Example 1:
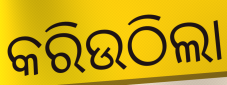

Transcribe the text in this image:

କରିଉଠିଲା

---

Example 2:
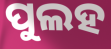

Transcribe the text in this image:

ପୁଲହ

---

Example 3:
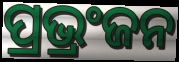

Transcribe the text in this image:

ପ୍ରଭ୍ରଂଜନ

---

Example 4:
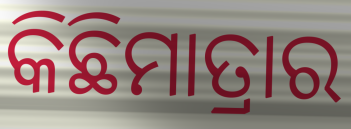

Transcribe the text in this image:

କିଛିମାତ୍ରାର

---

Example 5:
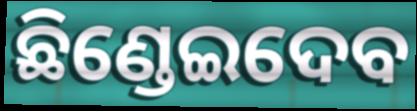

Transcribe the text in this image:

ଛିଣ୍ଡେଇଦେବ